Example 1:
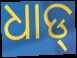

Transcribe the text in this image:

ଧାଡ୍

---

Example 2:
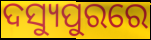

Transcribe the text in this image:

ଦସ୍ୟୁପୁରରେ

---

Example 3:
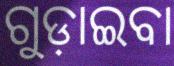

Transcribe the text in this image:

ଗୁଡ଼ାଇବା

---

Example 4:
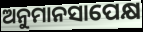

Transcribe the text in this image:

ଅନୁମାନସାପେକ୍ଷ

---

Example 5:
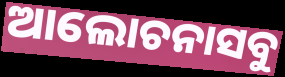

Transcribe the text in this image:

ଆଲୋଚନାସବୁ